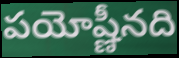
పయోష్ణీనది